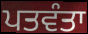
ਪਤਵੰਤਾ